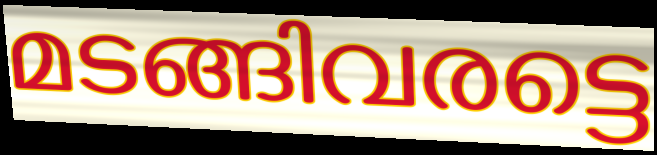
മടങ്ങിവരട്ടെ